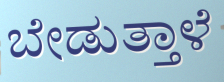
ಬೇಡುತ್ತಾಳೆ